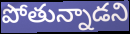
పోతున్నాడని